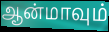
ஆன்மாவும்